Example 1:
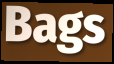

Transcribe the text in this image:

Bags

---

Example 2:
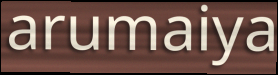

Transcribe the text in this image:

arumaiya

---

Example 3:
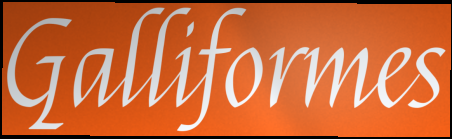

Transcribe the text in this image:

Galliformes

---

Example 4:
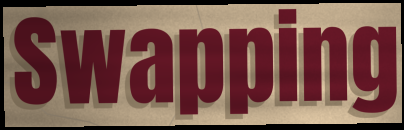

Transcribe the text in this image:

Swapping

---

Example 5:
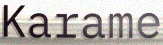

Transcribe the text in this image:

Karame